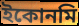
ইকোনমি